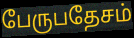
பேருபதேசம்